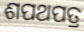
ଶପଥପତ୍ର